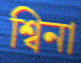
শ্বিনা